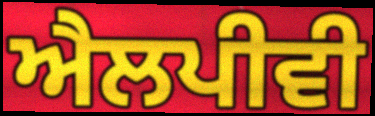
ਐਲਪੀਵੀ